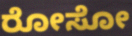
ರೋಸೋ